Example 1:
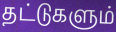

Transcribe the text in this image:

தட்டுகளும்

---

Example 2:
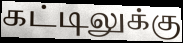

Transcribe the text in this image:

கட்டிலுக்கு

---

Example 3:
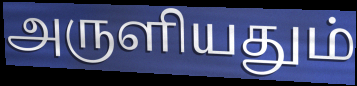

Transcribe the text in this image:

அருளியதும்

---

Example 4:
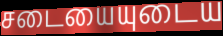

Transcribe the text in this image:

சடையையுடைய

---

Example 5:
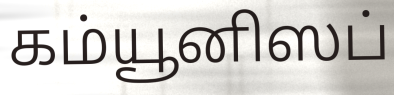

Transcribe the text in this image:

கம்யூனிஸப்